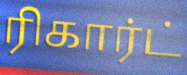
ரிகார்ட்